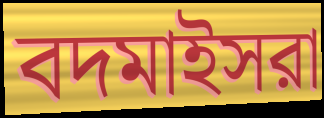
বদমাইসরা